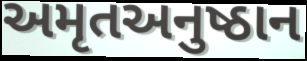
અમૃતઅનુષ્ઠાન